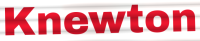
Knewton